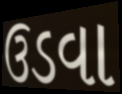
ઉડવા